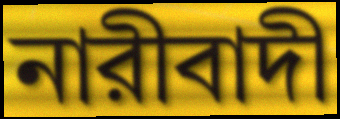
নারীবাদী